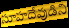
సూహదేవుడిని